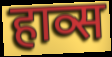
हाव्स